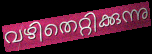
വഴിതെറ്റിക്കുന്നു